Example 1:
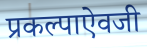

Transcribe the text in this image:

प्रकल्पाऐवजी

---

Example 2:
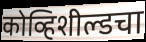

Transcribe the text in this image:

कोव्हिशील्डचा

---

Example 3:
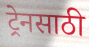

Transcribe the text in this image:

ट्रेनसाठी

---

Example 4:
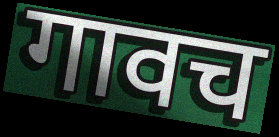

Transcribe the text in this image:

गावच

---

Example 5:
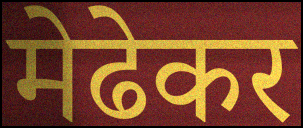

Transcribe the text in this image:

मेढेकर